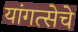
यांगत्सेचे